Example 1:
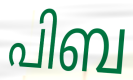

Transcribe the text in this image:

പിബ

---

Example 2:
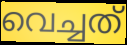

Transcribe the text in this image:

വെച്ചത്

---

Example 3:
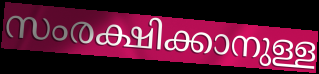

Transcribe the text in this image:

സംരക്ഷിക്കാനുള്ള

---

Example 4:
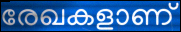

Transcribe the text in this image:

രേഖകളാണ്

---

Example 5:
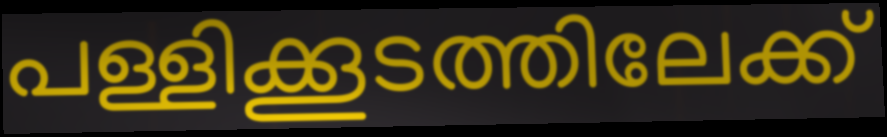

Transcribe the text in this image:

പള്ളിക്കൂടത്തിലേക്ക്